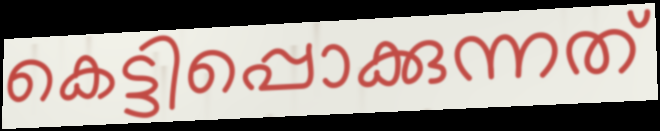
കെട്ടിപ്പൊക്കുന്നത്